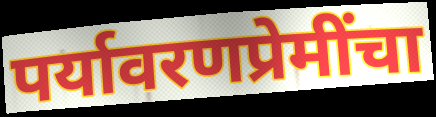
पर्यावरणप्रेमींचा